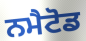
ਨਮੈਟੋਡ